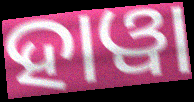
ହାୱା